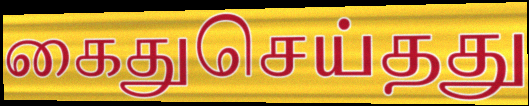
கைதுசெய்தது